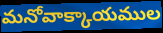
మనోవాక్కాయముల